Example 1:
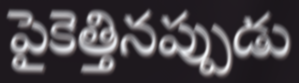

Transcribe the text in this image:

పైకెత్తినప్పుడు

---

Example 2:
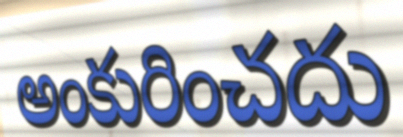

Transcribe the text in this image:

అంకురించదు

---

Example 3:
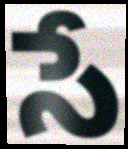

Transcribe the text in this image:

సే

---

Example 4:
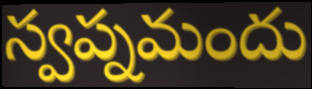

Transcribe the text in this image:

స్వప్నమందు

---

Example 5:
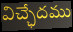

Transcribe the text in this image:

విచ్ఛేదము